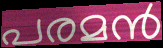
പരമൻ